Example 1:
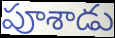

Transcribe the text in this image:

పూశాడు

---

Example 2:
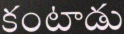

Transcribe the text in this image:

కంటాడు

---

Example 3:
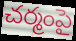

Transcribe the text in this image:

చర్మంపై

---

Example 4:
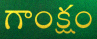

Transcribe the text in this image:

గాంక్షం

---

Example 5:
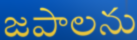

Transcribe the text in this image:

జపాలను